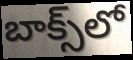
బాక్స్‌లో